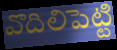
వొదిలిపెట్టి